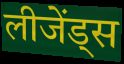
लीजेंड्स